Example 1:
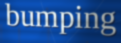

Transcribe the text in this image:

bumping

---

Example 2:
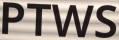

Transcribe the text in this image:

PTWS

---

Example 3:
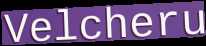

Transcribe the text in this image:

Velcheru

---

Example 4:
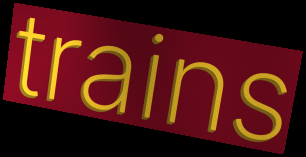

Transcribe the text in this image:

trains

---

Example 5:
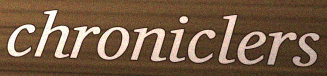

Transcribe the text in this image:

chroniclers